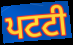
ਪਟਟੀ